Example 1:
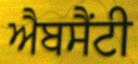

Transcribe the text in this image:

ਐਬਸੈਂਟੀ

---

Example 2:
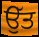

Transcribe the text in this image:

ਉੱਤ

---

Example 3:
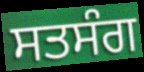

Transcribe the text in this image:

ਸਤਸੰਗ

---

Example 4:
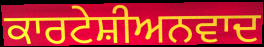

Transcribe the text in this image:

ਕਾਰਟੇਸ਼ੀਅਨਵਾਦ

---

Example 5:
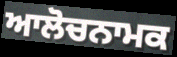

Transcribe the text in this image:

ਆਲੋਚਨਾਮਕ